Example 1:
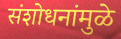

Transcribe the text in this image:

संशोधनांमुळे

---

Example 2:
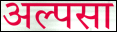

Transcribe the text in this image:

अल्पसा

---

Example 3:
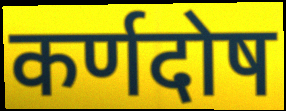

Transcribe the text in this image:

कर्णदोष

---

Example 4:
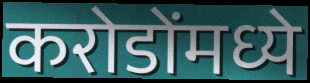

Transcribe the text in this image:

करोडोंमध्ये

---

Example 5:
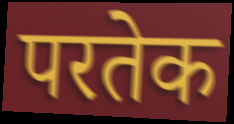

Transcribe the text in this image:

परतेक